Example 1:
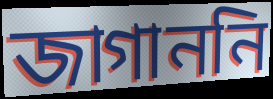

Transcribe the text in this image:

জাগাননি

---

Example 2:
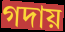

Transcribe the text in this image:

গদায়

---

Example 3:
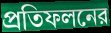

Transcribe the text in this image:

প্রতিফলনের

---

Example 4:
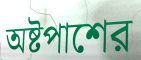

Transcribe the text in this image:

অষ্টপাশের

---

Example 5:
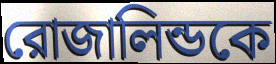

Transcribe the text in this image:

রোজালিন্ডকে